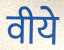
वीये